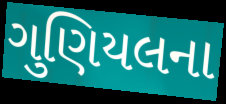
ગુણિયલના